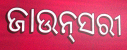
ଜାଉନ୍‌ସରୀ